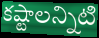
కష్టాలన్నిటి